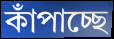
কাঁপাচ্ছে